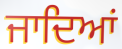
ਜਾਦਿਆਂ